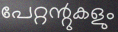
പേറ്റന്റുകളും